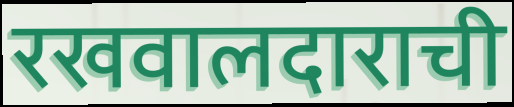
रखवालदाराची